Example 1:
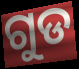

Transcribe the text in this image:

ଗୁଡ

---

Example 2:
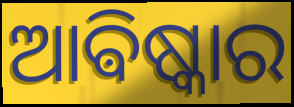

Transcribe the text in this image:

ଆଵିଷ୍କାର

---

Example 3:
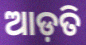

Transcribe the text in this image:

ଆଡ଼ତି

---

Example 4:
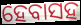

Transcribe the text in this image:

ହେବାସହ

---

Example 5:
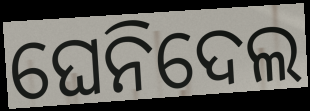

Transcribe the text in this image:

ଘେନିଦେଲ